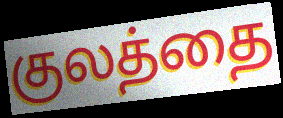
குலத்தை